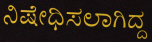
ನಿಷೇಧಿಸಲಾಗಿದ್ದ